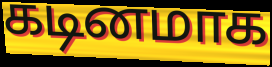
கடினமாக